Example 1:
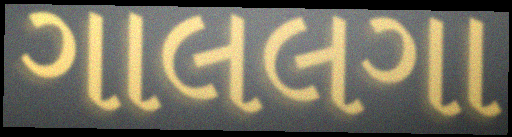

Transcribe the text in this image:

ગાલલગા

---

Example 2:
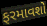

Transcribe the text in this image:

ફરમાવશો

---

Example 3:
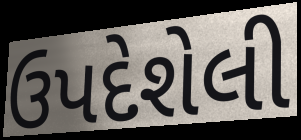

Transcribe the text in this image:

ઉપદેશેલી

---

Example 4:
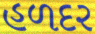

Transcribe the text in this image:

હળદર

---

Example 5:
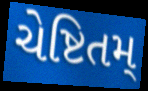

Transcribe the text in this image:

ચેષ્ટિતમ્